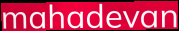
mahadevan